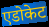
एडोकेट